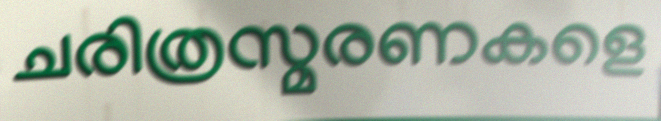
ചരിത്രസ്മരണകളെ